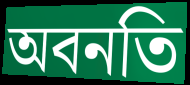
অবনতি